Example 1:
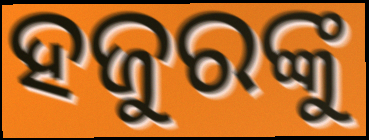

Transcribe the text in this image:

ହଜୁରଙ୍କୁ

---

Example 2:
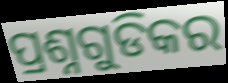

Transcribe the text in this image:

ପ୍ରଶ୍ନଗୁଡିକର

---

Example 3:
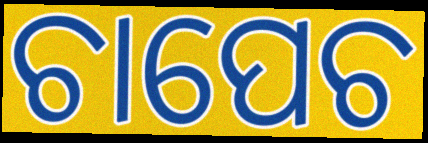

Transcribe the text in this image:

ଚାପେଚ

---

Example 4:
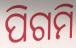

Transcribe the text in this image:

ପିଗମି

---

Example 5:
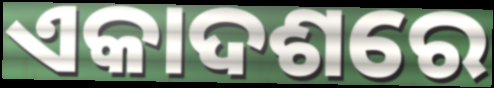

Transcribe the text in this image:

ଏକାଦଶରେ